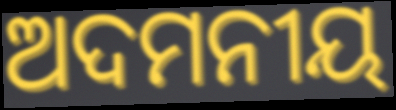
ଅଦମନୀୟ